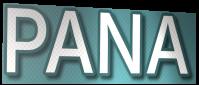
PANA